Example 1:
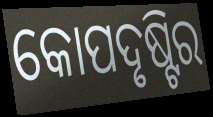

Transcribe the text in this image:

କୋପଦୃଷ୍ଟିର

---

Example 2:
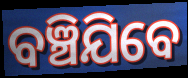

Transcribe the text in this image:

ବଞ୍ଚିଯିବେ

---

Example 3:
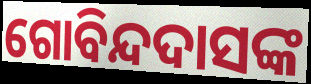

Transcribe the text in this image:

ଗୋବିନ୍ଦଦାସଙ୍କ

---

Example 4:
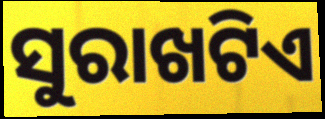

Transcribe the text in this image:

ସୁରାଖଟିଏ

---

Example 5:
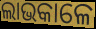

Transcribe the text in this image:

ଲାଭକାଳେ